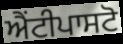
ਐਂਟੀਪਾਸਟੋ